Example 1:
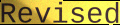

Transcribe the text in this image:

Revised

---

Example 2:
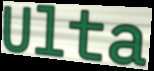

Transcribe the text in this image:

Ulta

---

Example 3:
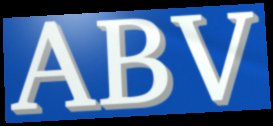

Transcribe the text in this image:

ABV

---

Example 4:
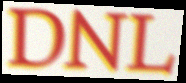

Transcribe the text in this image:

DNL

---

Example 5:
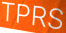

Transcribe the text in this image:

TPRS